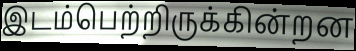
இடம்பெற்றிருக்கின்றன